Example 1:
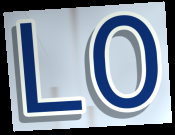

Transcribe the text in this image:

LO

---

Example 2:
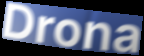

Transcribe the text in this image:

Drona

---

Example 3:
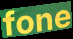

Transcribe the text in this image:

fone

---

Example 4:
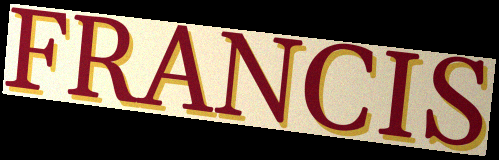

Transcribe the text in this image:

FRANCIS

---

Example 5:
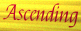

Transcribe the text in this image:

Ascending